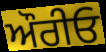
ਔਰੀਓ